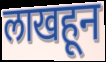
लाखहून